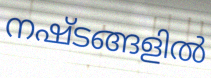
നഷ്ടങ്ങളിൽ